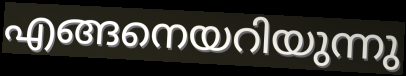
എങ്ങനെയറിയുന്നു